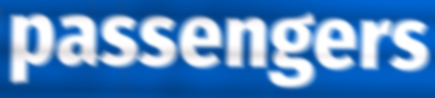
passengers